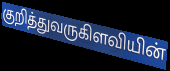
குறித்துவருகிளவியின்